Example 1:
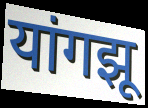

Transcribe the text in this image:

यांगझू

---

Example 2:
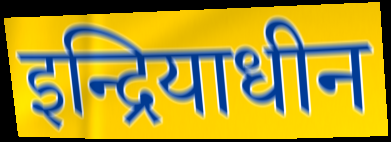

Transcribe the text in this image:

इन्द्रियाधीन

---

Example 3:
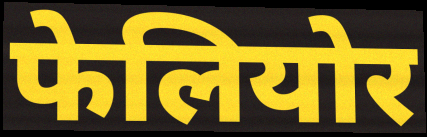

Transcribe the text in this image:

फेलियोर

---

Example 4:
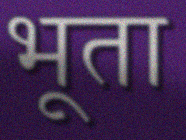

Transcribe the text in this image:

भूता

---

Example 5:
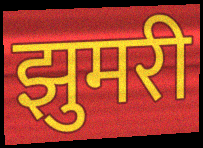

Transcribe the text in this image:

झुमरी